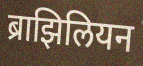
ब्राझिलियन